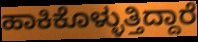
ಹಾಕಿಕೊಳ್ಳುತ್ತಿದ್ದಾರೆ